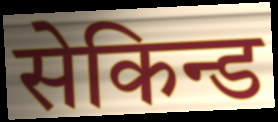
सेकिन्ड